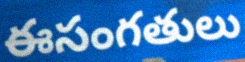
ఈసంగతులు